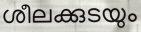
ശീലക്കുടയും